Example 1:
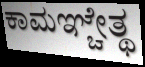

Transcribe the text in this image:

ಕಾಮಞ್ಚೇತ್ಥ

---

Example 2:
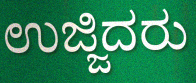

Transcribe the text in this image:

ಉಜ್ಜಿದರು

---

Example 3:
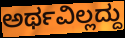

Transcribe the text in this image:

ಅರ್ಥವಿಲ್ಲದ್ದು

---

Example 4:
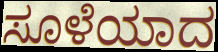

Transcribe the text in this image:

ಸೂಳೆಯಾದ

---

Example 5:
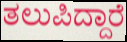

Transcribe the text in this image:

ತಲುಪಿದ್ದಾರೆ